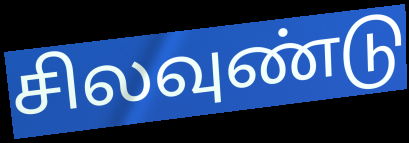
சிலவுண்டு